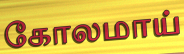
கோலமாய்